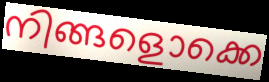
നിങ്ങളൊക്കെ